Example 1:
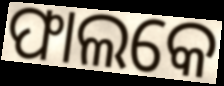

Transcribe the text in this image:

ଫାଲକେ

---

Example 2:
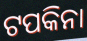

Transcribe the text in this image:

ଟପକିନା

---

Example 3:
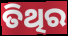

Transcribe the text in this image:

ତିଥିର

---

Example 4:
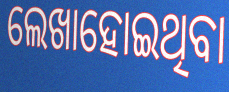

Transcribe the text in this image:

ଲେଖାହୋଇଥିବା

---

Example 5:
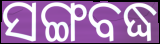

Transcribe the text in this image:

ସଙ୍ଗବଦ୍ଧ